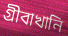
গ্রীবাখানি